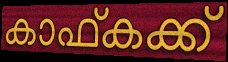
കാഫ്കക്ക്